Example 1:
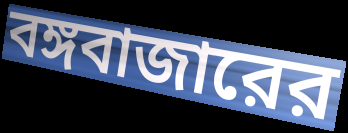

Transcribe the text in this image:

বঙ্গবাজারের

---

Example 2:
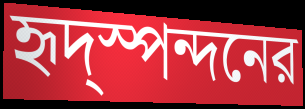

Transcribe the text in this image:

হৃদ্স্পন্দনের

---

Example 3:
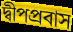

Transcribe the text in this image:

দ্বীপপ্রবাস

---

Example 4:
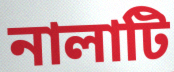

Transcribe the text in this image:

নালাটি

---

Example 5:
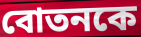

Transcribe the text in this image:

বোতনকে